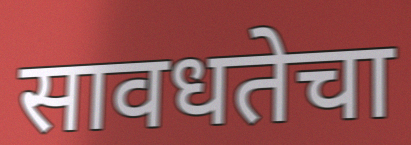
सावधतेचा